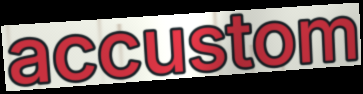
accustom